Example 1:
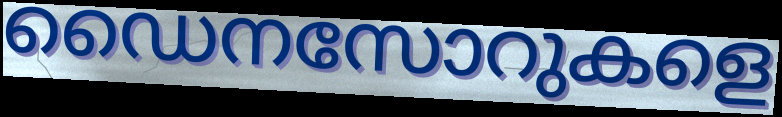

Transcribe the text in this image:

ഡൈനസോറുകളെ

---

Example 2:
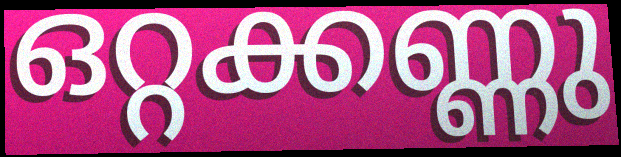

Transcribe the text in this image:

ഒറ്റക്കണ്ണു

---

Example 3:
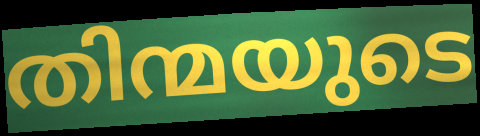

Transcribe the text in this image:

തിന്മയുടെ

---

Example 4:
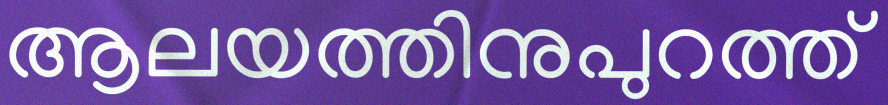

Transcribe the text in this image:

ആലയത്തിനുപുറത്ത്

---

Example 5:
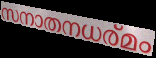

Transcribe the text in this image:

സനാതനധര്മം